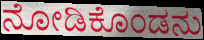
ನೋಡಿಕೊಂಡನು